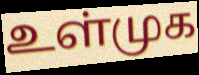
உள்முக